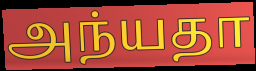
அந்யதா